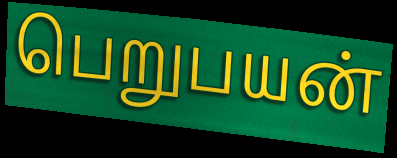
பெறுபயன்